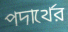
পদার্থের